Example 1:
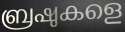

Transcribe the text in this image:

ബ്രഷുകളെ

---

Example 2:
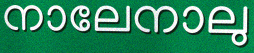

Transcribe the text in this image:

നാലേനാലു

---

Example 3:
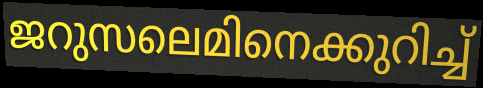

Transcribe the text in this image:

ജറുസലെമിനെക്കുറിച്ച്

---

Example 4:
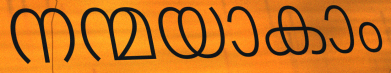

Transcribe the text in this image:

നന്മയാകാം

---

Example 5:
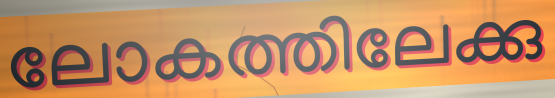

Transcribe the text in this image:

ലോകത്തിലേക്കു